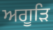
ਅਗੂੜਿ